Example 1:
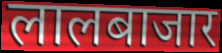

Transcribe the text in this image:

लालबाजार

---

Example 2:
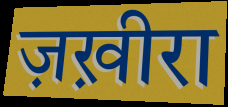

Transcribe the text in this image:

ज़ख़ीरा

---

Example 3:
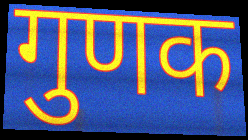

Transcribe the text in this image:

गुणक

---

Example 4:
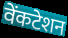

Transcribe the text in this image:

वेंकटेशन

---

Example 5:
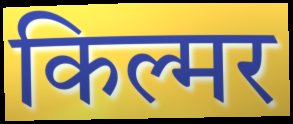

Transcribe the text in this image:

किल्मर